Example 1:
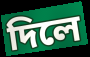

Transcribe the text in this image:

দিলে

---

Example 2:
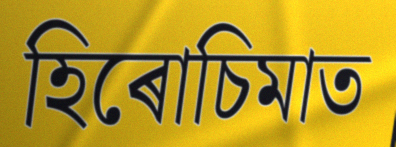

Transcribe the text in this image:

হিৰোচিমাত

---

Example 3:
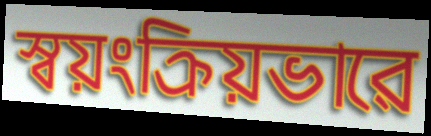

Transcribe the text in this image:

স্বয়ংক্ৰিয়ভাৱে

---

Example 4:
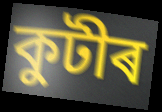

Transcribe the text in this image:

কুটীৰ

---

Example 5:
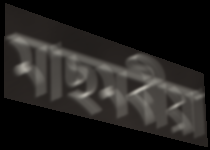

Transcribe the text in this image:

মাছমৰীয়া